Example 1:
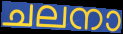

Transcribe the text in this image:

ചലനാ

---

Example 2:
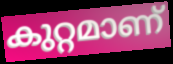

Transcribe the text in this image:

കുറ്റമാണ്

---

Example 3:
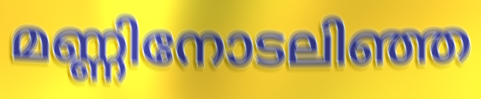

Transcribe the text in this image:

മണ്ണിനോടലിഞ്ഞ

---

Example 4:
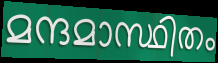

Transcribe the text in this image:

മന്ദമാസ്ഥിതം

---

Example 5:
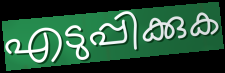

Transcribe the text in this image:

എടുപ്പിക്കുക